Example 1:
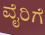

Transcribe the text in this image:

ವೈರಿಗೆ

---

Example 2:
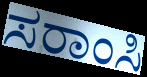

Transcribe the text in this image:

ಸರಾಂಸಿ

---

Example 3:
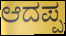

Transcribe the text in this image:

ಆದಪ್ಪ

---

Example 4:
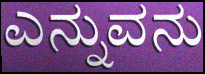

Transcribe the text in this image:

ಎನ್ನುವನು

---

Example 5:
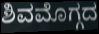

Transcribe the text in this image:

ಶಿವಮೊಗ್ಗದ